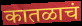
कातळाचं